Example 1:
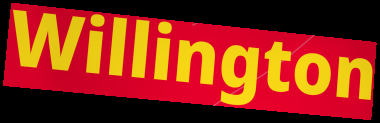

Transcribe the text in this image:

Willington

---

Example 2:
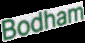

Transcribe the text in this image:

Bodham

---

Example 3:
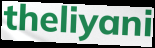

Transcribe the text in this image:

theliyani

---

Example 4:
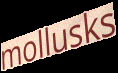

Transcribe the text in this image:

mollusks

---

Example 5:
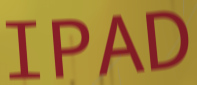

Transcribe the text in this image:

IPAD